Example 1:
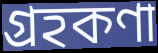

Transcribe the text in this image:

গ্রহকণা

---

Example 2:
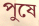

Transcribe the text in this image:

পুষে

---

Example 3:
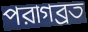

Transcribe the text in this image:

পরাগব্রত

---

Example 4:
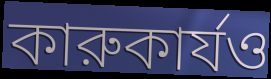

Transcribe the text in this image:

কারুকার্যও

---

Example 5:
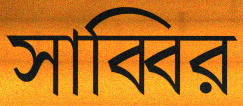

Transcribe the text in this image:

সাব্বির